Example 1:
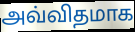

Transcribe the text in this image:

அவ்விதமாக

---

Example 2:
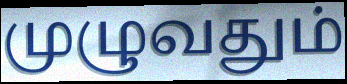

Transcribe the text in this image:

முழுவதும்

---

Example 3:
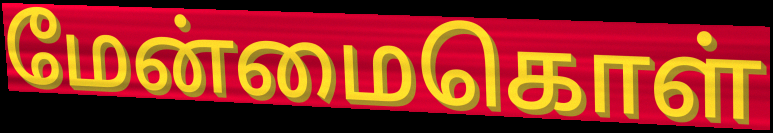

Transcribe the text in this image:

மேன்மைகொள்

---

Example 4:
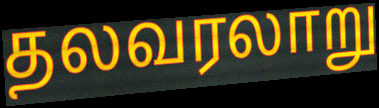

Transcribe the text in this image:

தலவரலாறு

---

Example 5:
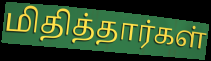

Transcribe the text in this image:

மிதித்தார்கள்